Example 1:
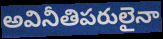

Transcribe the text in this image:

అవినీతిపరులైనా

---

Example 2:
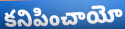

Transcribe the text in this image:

కనిపించాయో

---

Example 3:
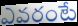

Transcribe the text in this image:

ఎవరంటే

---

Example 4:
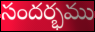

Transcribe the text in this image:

సందర్భము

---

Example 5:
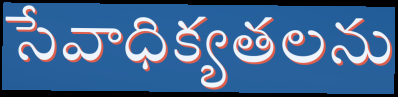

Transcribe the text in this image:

సేవాధిక్యతలను